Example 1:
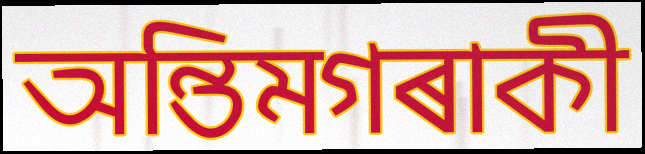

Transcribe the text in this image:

অন্তিমগৰাকী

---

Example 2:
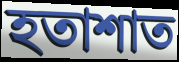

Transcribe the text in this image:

হতাশাত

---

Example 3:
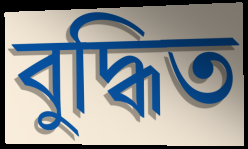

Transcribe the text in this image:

বুদ্ধিত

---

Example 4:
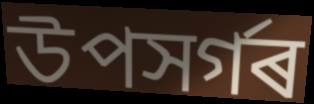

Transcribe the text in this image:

উপসৰ্গৰ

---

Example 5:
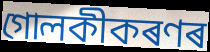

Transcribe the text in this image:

গোলকীকৰণৰ